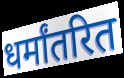
धर्मांतरित